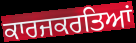
ਕਾਰਜਕਰਤਿਆਂ